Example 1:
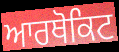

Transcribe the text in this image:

ਆਰਥੋਕਿਟ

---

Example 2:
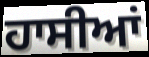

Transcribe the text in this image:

ਹਾਸੀਆਂ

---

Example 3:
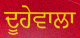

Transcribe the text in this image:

ਦੂਹੇਵਾਲਾ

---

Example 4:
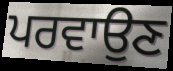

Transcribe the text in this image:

ਪਰਵਾਉਣ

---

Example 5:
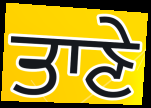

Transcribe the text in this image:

ਤਾਣੇ